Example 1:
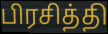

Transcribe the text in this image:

பிரசித்தி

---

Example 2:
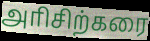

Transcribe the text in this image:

அரிசிற்கரை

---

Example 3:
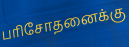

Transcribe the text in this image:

பரிசோதனைக்கு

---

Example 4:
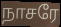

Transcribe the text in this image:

நாசரே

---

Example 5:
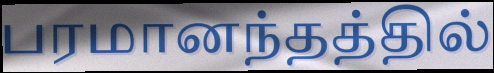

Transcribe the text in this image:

பரமானந்தத்தில்